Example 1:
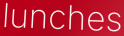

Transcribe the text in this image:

lunches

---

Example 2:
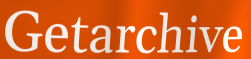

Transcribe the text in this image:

Getarchive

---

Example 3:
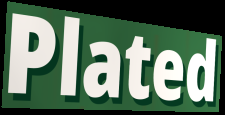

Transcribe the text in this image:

Plated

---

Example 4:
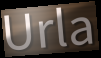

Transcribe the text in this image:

Urla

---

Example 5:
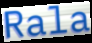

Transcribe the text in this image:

Rala